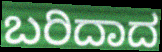
ಬರಿದಾದ